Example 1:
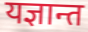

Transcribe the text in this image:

यज्ञान्त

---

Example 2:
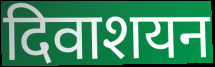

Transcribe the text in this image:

दिवाशयन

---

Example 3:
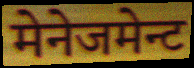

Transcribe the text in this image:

मेनेजमेन्ट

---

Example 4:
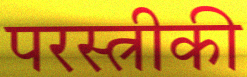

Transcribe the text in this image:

परस्त्रीकी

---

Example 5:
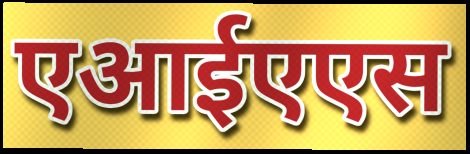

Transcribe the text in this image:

एआईएएस